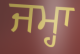
ਜਮ੍ਹਾ